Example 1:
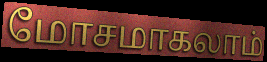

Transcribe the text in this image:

மோசமாகலாம்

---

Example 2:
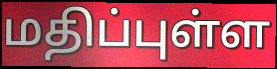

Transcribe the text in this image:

மதிப்புள்ள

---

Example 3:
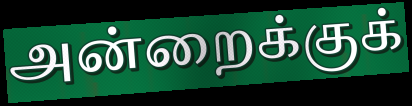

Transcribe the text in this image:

அன்றைக்குக்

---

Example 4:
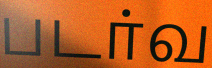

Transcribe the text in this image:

படர்வ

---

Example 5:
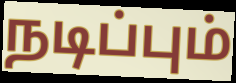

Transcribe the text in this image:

நடிப்பும்